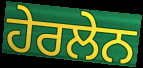
ਹੇਰਲੇਨ